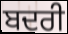
ਬਦਰੀ